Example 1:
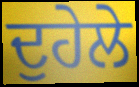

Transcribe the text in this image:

ਦੁਹੇਲੇ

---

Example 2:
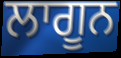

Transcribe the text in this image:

ਲਾਗੂਨ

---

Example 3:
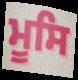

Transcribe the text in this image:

ਮੂਸਿ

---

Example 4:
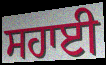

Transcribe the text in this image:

ਸਹਾਈ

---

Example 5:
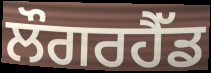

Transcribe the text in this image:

ਲੌਗਰਹੈੱਡ